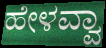
ಹೇಳವ್ವಾ